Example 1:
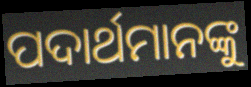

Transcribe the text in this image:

ପଦାର୍ଥମାନଙ୍କୁ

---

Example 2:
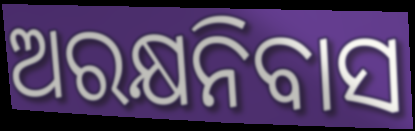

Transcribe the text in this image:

ଅରକ୍ଷନିବାସ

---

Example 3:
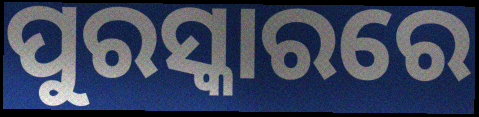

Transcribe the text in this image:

ପୁରସ୍କାରରେ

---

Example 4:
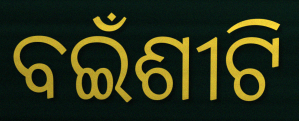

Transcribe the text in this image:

ବଇଁଶୀଟି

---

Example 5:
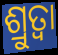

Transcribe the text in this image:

ଶ୍ରୁତ୍ଵା